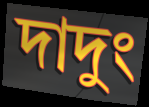
দাদুং